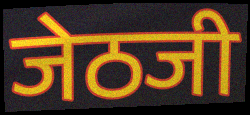
जेठजी